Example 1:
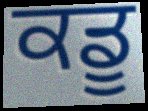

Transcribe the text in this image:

ਕਡੂ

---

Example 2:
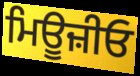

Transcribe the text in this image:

ਮਿਊਜ਼ੀਓ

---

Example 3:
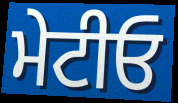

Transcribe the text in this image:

ਮੇਟੀਓ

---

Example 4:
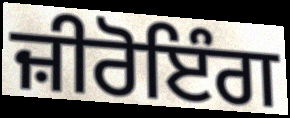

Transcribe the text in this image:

ਜ਼ੀਰੋਇੰਗ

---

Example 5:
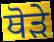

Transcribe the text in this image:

ਥੋਡ਼ੇ